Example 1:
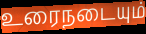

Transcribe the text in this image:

உரைநடையும்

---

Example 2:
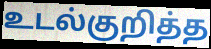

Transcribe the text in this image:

உடல்குறித்த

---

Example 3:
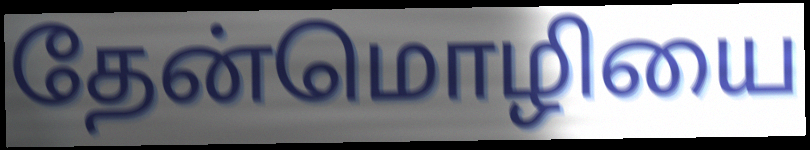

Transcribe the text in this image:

தேன்மொழியை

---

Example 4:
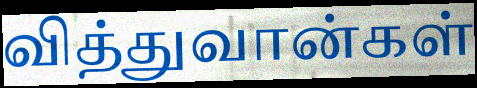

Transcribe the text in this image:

வித்துவான்கள்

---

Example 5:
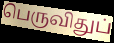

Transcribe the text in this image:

பெருவிதுப்